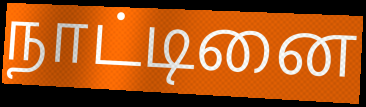
நாட்டினை